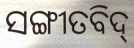
ସଙ୍ଗୀତବିଦ୍